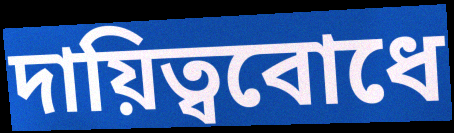
দায়িত্ববোধে